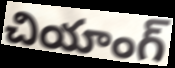
చియాంగ్